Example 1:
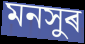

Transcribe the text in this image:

মনসুৰ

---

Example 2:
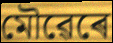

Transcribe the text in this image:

মৌৱেৰে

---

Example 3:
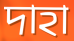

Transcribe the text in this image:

দাহা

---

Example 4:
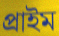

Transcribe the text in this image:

প্ৰাইম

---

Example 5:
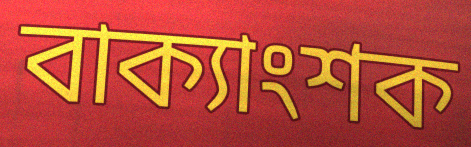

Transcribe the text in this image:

বাক্যাংশক